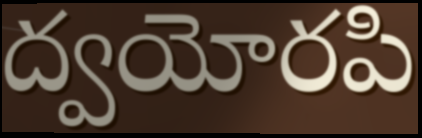
ద్వయోరపి